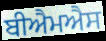
ਬੀਐਮਐਸ